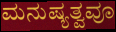
ಮನುಷ್ಯತ್ವವೂ